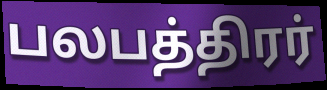
பலபத்திரர்